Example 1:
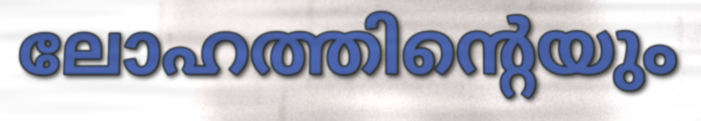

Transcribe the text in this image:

ലോഹത്തിന്റെയും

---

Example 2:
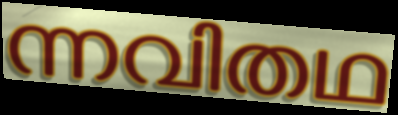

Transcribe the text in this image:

ന്നവിതഥ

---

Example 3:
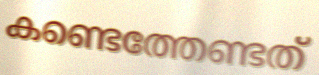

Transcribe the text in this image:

കണ്ടെത്തേണ്ടത്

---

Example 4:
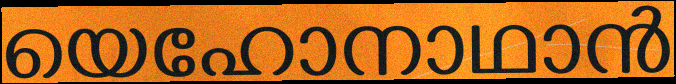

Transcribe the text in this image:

യെഹോനാഥാൻ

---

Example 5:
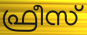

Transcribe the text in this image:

ഫ്രീസ്